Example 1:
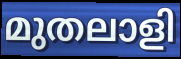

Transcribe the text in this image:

മുതലാളി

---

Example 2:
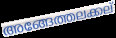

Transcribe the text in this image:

അങ്ങേത്തലക്കല്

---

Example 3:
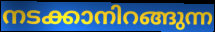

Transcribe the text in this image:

നടക്കാനിറങ്ങുന്ന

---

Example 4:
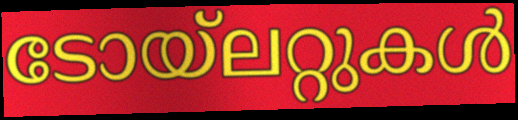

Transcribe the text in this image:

ടോയ്ലറ്റുകൾ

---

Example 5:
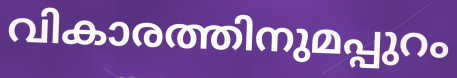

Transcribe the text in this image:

വികാരത്തിനുമപ്പുറം